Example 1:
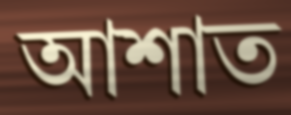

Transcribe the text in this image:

আশাত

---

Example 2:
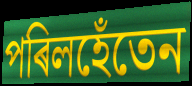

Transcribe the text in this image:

পৰিলহেঁতেন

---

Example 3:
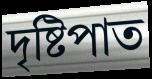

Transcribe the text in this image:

দৃষ্টিপাত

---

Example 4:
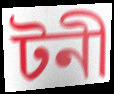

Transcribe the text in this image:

টনী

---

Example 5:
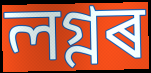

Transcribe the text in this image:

লগ্নৰ